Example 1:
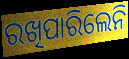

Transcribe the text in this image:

ରଖିପାରିଲେନି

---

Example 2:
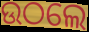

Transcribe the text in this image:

ଉଠଲେ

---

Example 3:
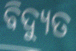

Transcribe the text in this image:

ବିଦ୍ୟୁତ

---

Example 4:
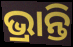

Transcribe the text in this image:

ଭ୍ରାନ୍ତି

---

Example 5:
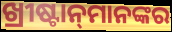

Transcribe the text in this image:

ଖ୍ରୀଷ୍ଟାନ୍‌ମାନଙ୍କର